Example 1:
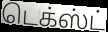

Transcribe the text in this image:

டெக்ஸ்ட்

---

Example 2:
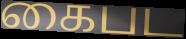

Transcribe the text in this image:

கைபட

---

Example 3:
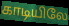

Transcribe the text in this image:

காடியிலே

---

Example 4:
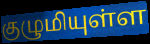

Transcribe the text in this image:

குழுமியுள்ள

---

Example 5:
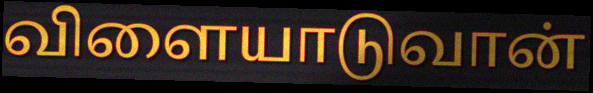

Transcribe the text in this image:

விளையாடுவான்